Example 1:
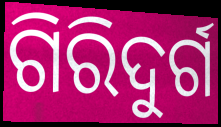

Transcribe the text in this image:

ଗିରିଦୁର୍ଗ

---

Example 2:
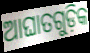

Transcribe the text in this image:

ଆଘାତଗୁଡ଼ିକ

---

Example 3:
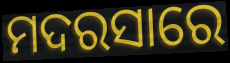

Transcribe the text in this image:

ମଦରସାରେ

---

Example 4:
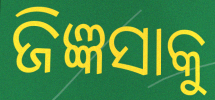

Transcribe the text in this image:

ଜିଜ୍ଞସାକୁ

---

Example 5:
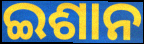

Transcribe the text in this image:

ଇଶାନ